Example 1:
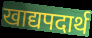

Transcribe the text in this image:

खाद्यपदार्थ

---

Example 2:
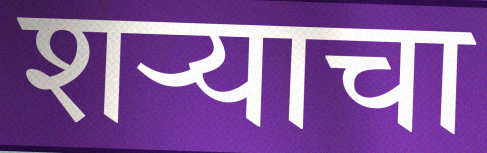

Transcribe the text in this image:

शर्‍याचा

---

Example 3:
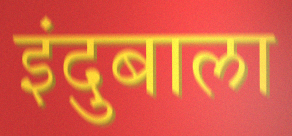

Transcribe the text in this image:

इंदुबाला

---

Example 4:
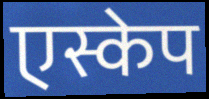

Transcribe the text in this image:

एस्केप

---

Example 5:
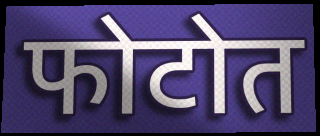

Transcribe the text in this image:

फोटोत